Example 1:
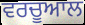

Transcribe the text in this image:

ਵਰਚੂਆਲ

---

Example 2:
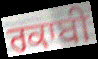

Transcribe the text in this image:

ਰਕਾਬੀ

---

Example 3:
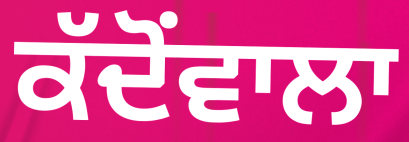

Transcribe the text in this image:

ਕੱਦੋਂਵਾਲਾ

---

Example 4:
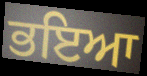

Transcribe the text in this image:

ਭਇਆ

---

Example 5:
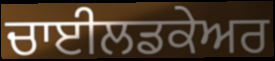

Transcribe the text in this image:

ਚਾਈਲਡਕੇਅਰ